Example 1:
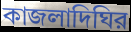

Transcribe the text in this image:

কাজলাদিঘির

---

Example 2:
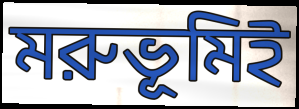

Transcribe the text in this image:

মরুভূমিই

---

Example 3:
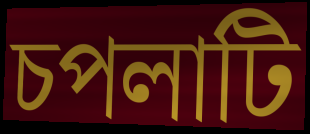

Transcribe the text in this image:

চপলাটি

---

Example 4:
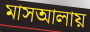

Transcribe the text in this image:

মাসআলায়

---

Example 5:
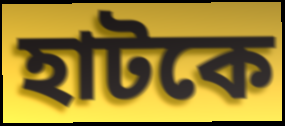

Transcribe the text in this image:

হাটকে